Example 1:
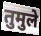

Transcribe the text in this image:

तुमुले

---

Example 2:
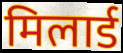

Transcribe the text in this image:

मिलार्ड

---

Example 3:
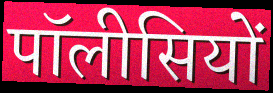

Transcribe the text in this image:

पॉलीसियों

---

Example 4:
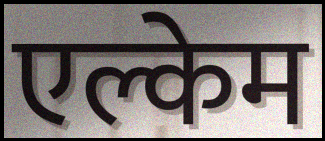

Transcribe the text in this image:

एल्केम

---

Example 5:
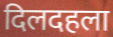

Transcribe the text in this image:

दिलदहला